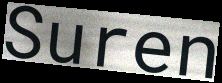
Suren